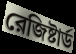
রেজিষ্টার্ড